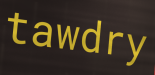
tawdry